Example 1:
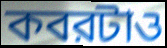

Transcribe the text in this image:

কবরটাও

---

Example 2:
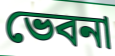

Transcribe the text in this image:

ভেবনা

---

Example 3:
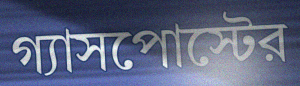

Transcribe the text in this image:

গ্যাসপোস্টের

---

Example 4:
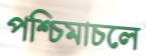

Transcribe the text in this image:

পশ্চিমাচলে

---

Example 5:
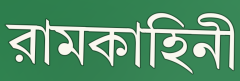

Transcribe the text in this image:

রামকাহিনী